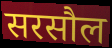
सरसौल